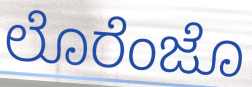
ಲೊರೆಂಜೊ